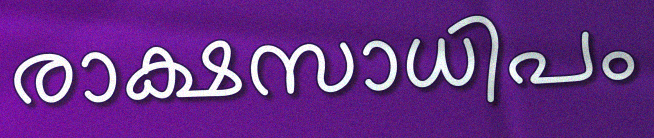
രാക്ഷസാധിപം